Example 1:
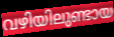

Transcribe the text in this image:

വഴിയിലുണ്ടായ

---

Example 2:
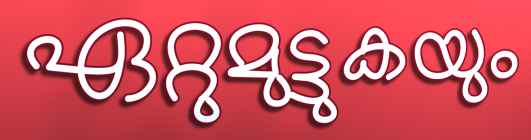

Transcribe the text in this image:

ഏറ്റുമുട്ടുകയും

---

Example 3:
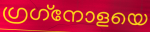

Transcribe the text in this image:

ഗ്രഗ്‌നോളയെ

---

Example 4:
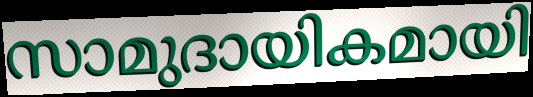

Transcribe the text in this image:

സാമുദായികമായി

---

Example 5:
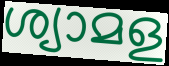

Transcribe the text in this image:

ശ്യാമള